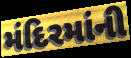
મંદિરમાંની